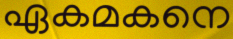
ഏകമകനെ